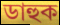
ডাহুক